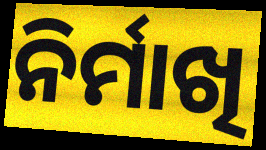
ନିର୍ମାଖି